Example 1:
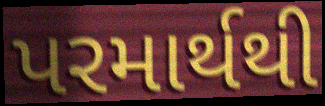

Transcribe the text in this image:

પરમાર્થથી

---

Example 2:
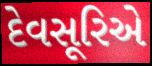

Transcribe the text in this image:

દેવસૂરિએ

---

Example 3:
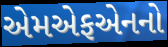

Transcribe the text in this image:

એમએફએનનો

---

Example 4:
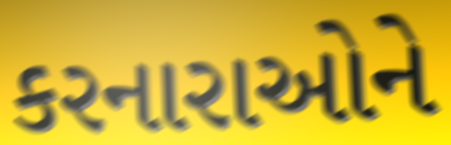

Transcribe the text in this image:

કરનારાઓને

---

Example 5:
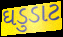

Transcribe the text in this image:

ઘડુડાટ